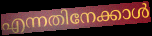
എന്നതിനേക്കാൾ